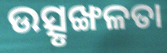
ଉତ୍ସୃଙ୍ଖଳତା